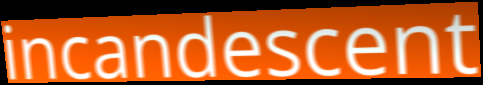
incandescent